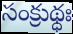
సంక్రుథ్ధః